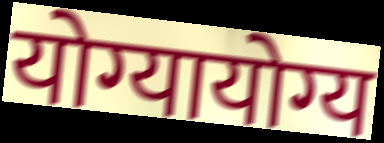
योग्यायोग्य